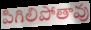
పిగిలిపోతావు